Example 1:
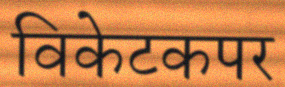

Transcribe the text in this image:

विकेटकपर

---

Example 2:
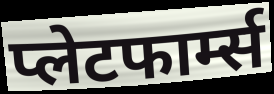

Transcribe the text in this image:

प्लेटफार्म्स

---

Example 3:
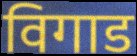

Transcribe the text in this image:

विगाड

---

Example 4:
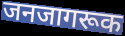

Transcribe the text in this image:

जनजागरूक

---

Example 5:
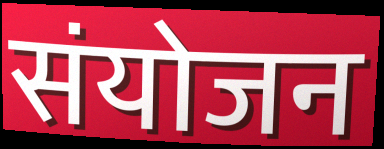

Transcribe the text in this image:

संयोजन